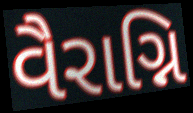
વૈરાગ્નિ